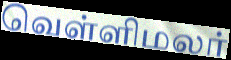
வெள்ளிமலர்